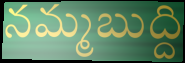
నమ్మబుద్ది